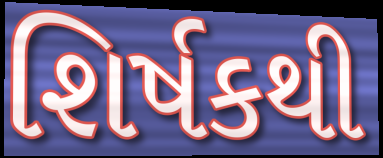
શિર્ષકથી